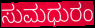
ಸುಮಧುರಂ